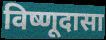
विष्णूदासा